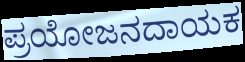
ಪ್ರಯೋಜನದಾಯಕ